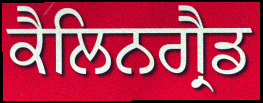
ਕੈਲਿਨਗ੍ਰੈਡ